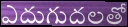
ఎదుగుదలతో